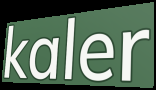
kaler